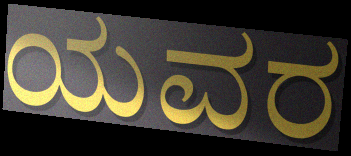
ಯವರ